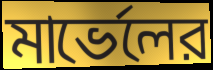
মার্ভেলের